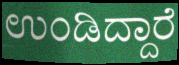
ಉಂಡಿದ್ದಾರೆ